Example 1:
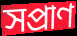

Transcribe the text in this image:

সপ্রাণ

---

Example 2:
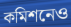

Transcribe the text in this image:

কমিশনেও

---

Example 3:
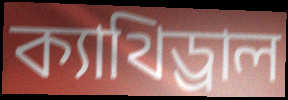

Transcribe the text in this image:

ক্যাথিড্রাল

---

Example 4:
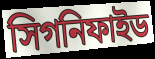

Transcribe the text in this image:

সিগনিফাইড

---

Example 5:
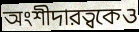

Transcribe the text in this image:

অংশীদারত্বকেও